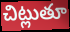
చిట్లుతూ